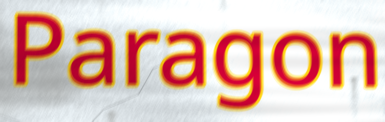
Paragon